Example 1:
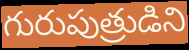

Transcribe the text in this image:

గురుపుత్రుడిని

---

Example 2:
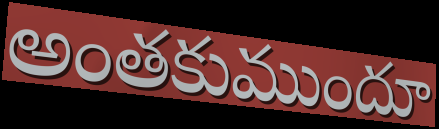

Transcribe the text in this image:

అంతకుముందూ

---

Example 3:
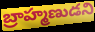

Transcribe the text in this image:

బ్రాహ్మణుడని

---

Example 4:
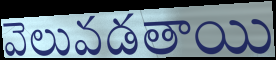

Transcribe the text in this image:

వెలువడతాయి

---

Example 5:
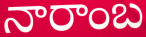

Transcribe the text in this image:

నారాంబ